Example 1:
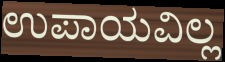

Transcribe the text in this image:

ಉಪಾಯವಿಲ್ಲ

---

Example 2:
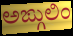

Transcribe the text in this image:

ಅಙ್ಗುಲಿಂ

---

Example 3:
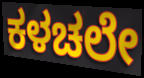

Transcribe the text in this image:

ಕಳಚಲೇ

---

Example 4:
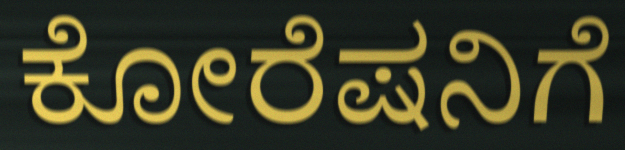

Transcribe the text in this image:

ಕೋರೆಷನಿಗೆ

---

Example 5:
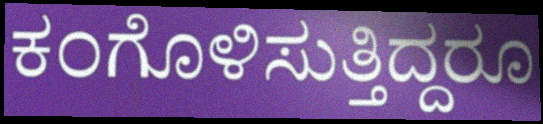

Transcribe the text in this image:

ಕಂಗೊಳಿಸುತ್ತಿದ್ದರೂ